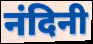
नंदिनी